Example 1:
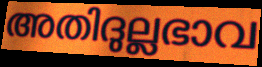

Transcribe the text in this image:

അതിദുല്ലഭാവ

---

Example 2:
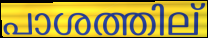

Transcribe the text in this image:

പാശത്തില്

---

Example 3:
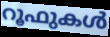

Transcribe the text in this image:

റൂഫുകൾ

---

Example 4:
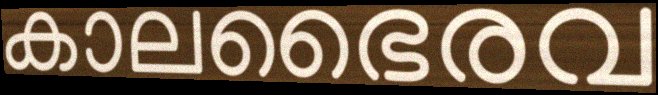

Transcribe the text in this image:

കാലഭൈരവ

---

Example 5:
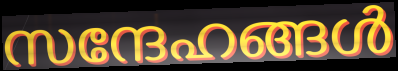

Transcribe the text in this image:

സന്ദേഹങ്ങൾ